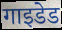
गाइडेड